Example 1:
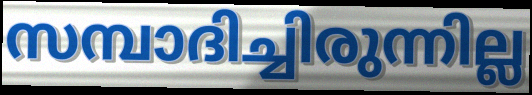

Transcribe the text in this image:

സമ്പാദിച്ചിരുന്നില്ല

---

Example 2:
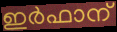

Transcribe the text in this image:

ഇർഫാന്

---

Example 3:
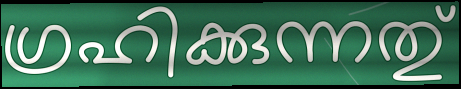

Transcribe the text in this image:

ഗ്രഹിക്കുന്നതു്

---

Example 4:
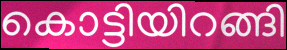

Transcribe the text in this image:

കൊട്ടിയിറങ്ങി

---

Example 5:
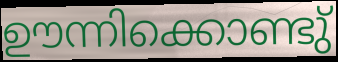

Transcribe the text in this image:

ഊന്നിക്കൊണ്ടു്